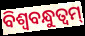
ବିଶ୍ଵବନ୍ଧୁତ୍ଵମ୍